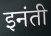
इनंती